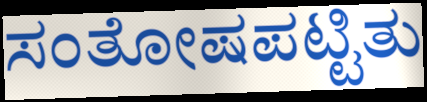
ಸಂತೋಷಪಟ್ಟಿತು